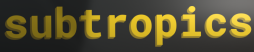
subtropics